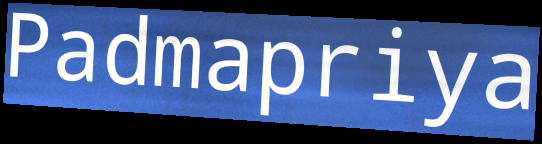
Padmapriya